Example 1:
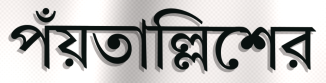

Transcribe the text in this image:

পঁয়তাল্লিশের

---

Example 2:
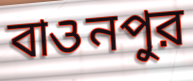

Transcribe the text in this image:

বাওনপুর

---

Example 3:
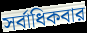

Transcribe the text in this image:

সর্বাধিকবার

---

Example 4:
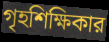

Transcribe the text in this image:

গৃহশিক্ষিকার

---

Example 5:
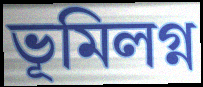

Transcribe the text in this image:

ভূমিলগ্ন